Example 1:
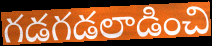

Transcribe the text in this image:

గడగడలాడించి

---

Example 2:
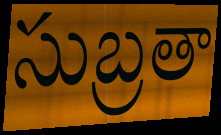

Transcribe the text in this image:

సుబ్రతా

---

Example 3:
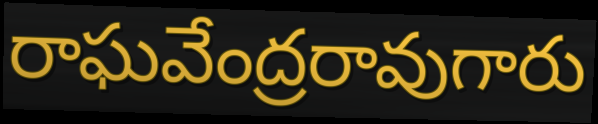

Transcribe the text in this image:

రాఘవేంద్రరావుగారు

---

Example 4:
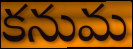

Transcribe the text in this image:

కనుమ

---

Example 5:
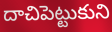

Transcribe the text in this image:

దాచిపెట్టుకుని